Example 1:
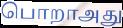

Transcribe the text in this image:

பொறாஅது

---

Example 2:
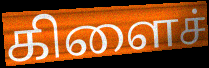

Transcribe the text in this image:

கிளைச்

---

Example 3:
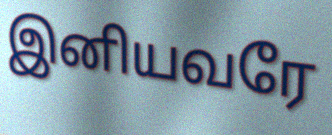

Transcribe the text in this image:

இனியவரே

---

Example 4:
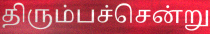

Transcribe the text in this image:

திரும்பச்சென்று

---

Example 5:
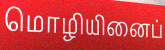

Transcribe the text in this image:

மொழியினைப்